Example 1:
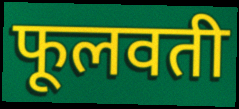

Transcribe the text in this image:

फूलवती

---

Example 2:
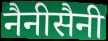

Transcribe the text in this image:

नैनीसैनी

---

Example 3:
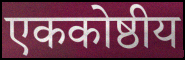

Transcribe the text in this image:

एककोष्ठीय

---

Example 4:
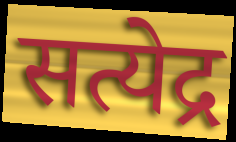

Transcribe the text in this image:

सत्येद्र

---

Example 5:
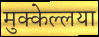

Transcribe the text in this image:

मुक्केल्लया